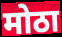
मोठा